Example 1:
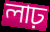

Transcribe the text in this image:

লাঢ়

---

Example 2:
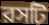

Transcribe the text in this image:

রসটি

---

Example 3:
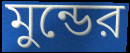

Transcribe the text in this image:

মুন্ডের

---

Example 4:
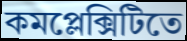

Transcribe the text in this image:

কমপ্লেক্সিটিতে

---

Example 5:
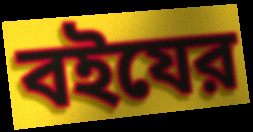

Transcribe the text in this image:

বইযের